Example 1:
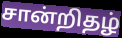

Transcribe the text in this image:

சான்றிதழ்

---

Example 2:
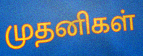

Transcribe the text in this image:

முதனிகள்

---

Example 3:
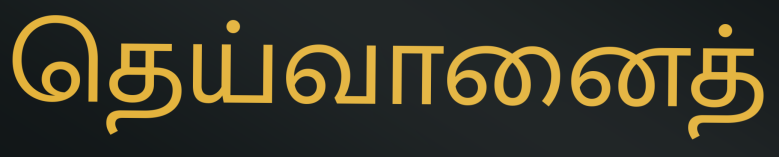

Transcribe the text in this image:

தெய்வானைத்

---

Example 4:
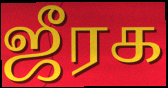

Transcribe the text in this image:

ஜீரக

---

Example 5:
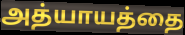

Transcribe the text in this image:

அத்யாயத்தை